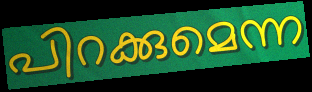
പിറക്കുമെന്ന